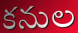
కనుల